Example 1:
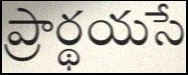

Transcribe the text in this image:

ప్రార్థయసే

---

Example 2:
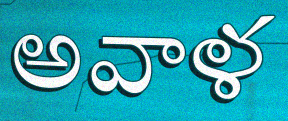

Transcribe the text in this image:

అవాళ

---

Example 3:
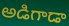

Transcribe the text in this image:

అడిగాడా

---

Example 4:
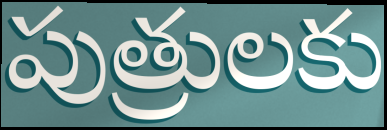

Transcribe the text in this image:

పుత్రులకు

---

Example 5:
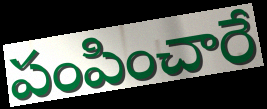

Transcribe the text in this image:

పంపించారే